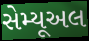
સેમ્યૂઅલ